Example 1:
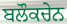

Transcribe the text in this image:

ਬਲੌਕਚੇਨ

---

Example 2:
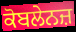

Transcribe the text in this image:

ਕੋਬਲੇਨਜ਼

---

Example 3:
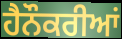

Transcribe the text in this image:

ਹੈਨੌਕਰੀਆਂ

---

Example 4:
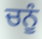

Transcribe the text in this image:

ਚਨੂੰ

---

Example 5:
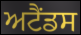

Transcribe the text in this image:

ਅਟੈਂਡਸ